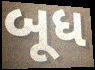
બૂધ